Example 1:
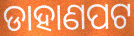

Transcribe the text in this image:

ଡାହାଣପଟ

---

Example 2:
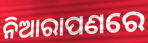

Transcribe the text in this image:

ନିଆରାପଣରେ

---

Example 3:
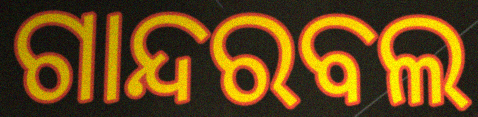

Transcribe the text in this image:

ଗାନ୍ଦରବଲ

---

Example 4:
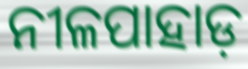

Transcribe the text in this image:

ନୀଳପାହାଡ଼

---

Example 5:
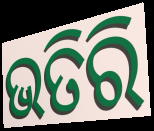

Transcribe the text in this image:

ଭତିରି